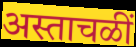
अस्ताचळीं